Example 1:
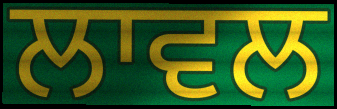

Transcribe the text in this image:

ਲਾਵਲ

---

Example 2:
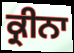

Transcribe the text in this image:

ਕ੍ਰੀਨਾ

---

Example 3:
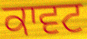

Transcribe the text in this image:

ਕਾਵਟ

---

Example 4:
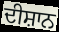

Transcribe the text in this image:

ਦੀਸ਼ਾਨ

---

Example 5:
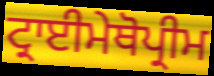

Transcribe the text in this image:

ਟ੍ਰਾਈਮੇਥੋਪ੍ਰੀਮ